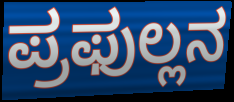
ಪ್ರಫುಲ್ಲನ